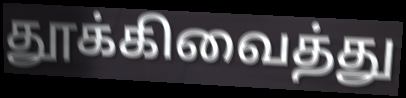
தூக்கிவைத்து